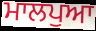
ਮਾਲਪੁਆ